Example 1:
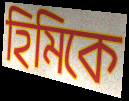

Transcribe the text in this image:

হিমিকে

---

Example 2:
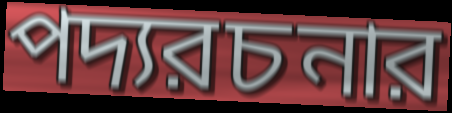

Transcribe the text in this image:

পদ্যরচনার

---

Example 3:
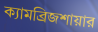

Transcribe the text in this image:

ক্যামব্রিজশায়ার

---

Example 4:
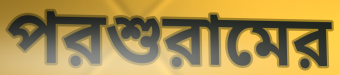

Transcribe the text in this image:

পরশুরামের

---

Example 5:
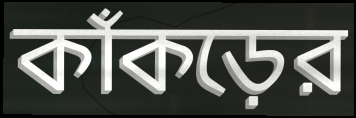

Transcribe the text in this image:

কাঁকড়ের